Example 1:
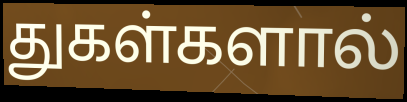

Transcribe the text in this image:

துகள்களால்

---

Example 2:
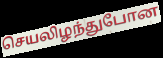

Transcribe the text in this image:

செயலிழந்துபோன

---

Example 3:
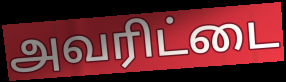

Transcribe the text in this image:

அவரிட்டை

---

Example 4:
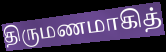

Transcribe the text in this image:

திருமணமாகித்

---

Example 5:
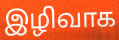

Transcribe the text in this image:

இழிவாக